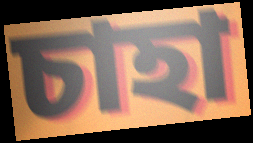
চাহা